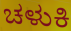
ಚಳುಕಿ